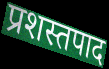
प्रशस्तपाद